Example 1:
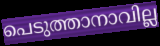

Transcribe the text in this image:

പെടുത്താനാവില്ല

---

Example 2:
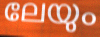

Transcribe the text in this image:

ലേയും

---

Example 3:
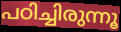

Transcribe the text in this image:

പഠിച്ചിരുന്നൂ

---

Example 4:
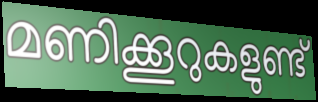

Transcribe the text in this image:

മണിക്കൂറുകളുണ്ട്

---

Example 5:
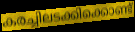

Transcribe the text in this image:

കരച്ചിലടക്കിക്കൊണ്ട്